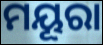
ମୟୂରା